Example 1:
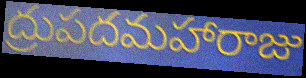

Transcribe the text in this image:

ద్రుపదమహారాజు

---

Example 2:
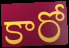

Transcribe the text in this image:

కారో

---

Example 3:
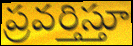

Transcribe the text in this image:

ప్రవర్తిస్తూ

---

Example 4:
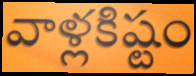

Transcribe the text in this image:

వాళ్లకిష్టం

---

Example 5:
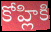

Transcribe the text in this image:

కోహ్లికి